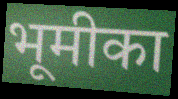
भूमीका